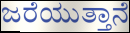
ಜರೆಯುತ್ತಾನೆ